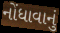
નોંધાવાનું